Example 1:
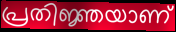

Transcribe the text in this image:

പ്രതിജ്ഞയാണ്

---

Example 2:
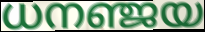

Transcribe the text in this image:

ധനഞ്ജയ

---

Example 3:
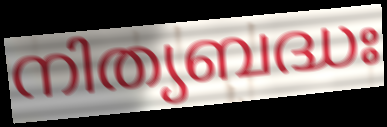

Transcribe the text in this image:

നിത്യബദ്ധഃ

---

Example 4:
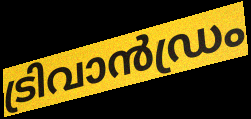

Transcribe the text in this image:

ട്രിവാൻഡ്രം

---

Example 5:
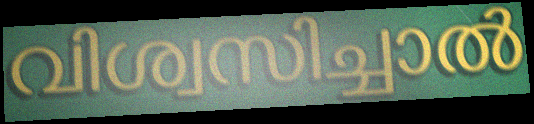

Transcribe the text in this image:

വിശ്വസിച്ചാൽ